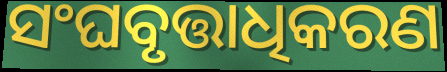
ସଂଘବୃତ୍ତାଧିକରଣ